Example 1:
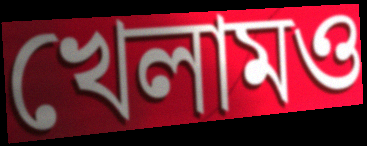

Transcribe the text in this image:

খেলামও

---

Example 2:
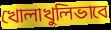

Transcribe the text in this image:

খোলাখুলিভাবে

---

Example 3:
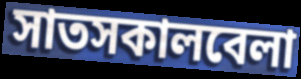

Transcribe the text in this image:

সাতসকালবেলা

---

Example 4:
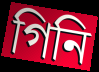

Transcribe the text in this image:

গিনি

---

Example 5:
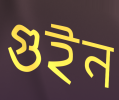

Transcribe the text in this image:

গুইন